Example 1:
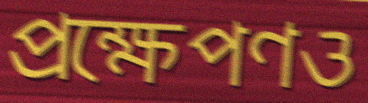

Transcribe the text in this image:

প্রক্ষেপণও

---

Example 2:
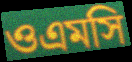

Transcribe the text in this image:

ওএমসি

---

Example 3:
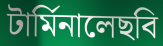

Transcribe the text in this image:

টার্মিনালেছবি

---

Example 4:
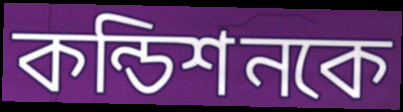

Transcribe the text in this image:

কন্ডিশনকে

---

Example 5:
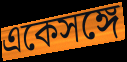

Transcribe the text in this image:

একেসঙ্গে